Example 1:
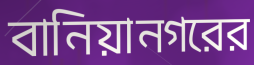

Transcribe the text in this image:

বানিয়ানগরের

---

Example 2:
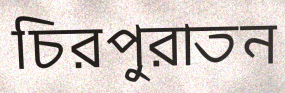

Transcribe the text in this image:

চিরপুরাতন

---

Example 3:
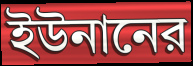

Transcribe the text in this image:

ইউনানের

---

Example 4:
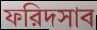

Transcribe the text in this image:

ফরিদসাব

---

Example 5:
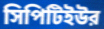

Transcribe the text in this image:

সিপিটিইউর